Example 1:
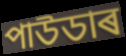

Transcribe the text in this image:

পাউডাৰ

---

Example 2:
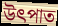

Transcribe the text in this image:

উৎপাত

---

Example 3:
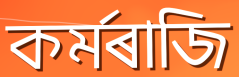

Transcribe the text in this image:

কৰ্মৰাজি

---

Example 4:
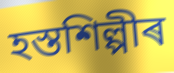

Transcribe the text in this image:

হস্তশিল্পীৰ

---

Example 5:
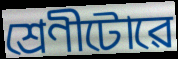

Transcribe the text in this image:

শ্ৰেণীটোৱে